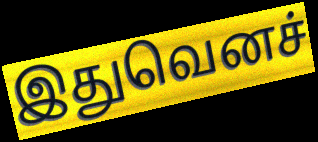
இதுவெனச்